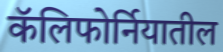
कॅलिफोर्नियातील